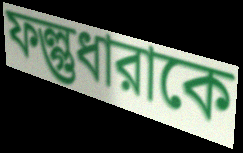
ফল্গুধারাকে